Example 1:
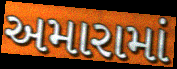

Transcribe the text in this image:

અમારામાં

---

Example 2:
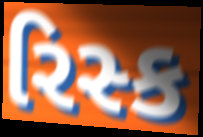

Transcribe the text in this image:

રિસ્ક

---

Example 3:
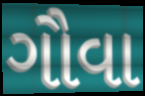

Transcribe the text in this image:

ગૌવા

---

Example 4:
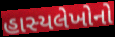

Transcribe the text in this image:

હાસ્યલેખોનો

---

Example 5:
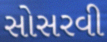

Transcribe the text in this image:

સોસરવી